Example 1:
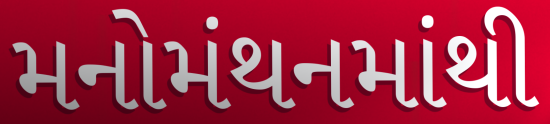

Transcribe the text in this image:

મનોમંથનમાંથી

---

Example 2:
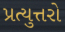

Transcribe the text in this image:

પ્રત્યુત્તરો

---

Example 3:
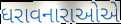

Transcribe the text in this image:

ધરાવનારાઓએ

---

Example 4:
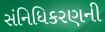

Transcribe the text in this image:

સંનિધિકરણની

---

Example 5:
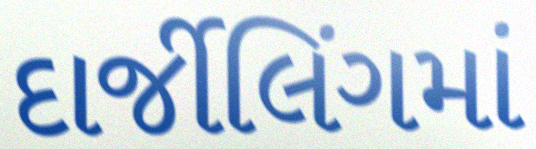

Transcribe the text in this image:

દાર્જીલિંગમાં